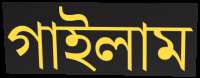
গাইলাম